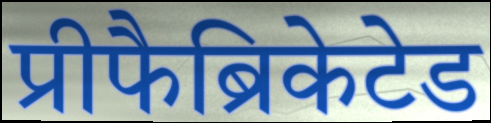
प्रीफैब्रिकेटेड